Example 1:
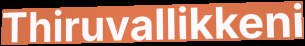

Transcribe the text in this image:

Thiruvallikkeni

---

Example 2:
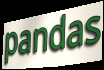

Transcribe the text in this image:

pandas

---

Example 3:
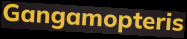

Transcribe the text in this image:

Gangamopteris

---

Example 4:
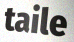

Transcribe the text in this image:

taile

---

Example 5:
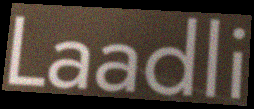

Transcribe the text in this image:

Laadli